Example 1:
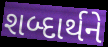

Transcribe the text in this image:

શબ્દાર્થને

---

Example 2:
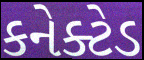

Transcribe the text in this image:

કનેક્ટેડ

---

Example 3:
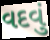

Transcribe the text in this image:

વદવું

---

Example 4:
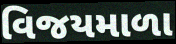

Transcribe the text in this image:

વિજયમાળા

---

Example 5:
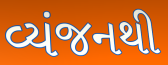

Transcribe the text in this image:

વ્યંજનથી